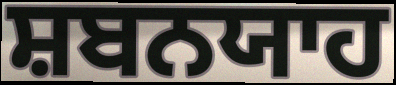
ਸ਼ਬਨਯਾਹ